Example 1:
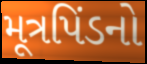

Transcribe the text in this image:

મૂત્રપિંડનો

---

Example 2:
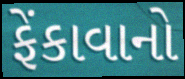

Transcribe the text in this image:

ફેંકાવાનો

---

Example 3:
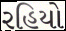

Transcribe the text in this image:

રહિયો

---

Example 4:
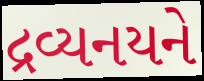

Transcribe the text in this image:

દ્રવ્યનયને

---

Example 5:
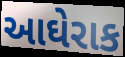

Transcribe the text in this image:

આઘેરાક